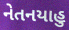
નેતનયાહુ